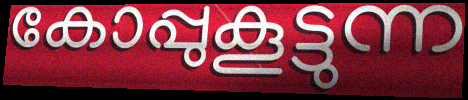
കോപ്പുകൂട്ടുന്ന